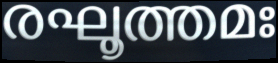
രഘൂത്തമഃ